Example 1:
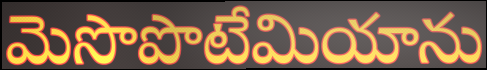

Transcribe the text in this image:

మెసొపొటేమియాను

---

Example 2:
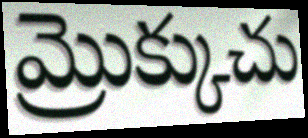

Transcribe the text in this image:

మ్రొక్కుచు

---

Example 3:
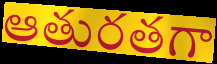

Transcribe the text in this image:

ఆతురతగా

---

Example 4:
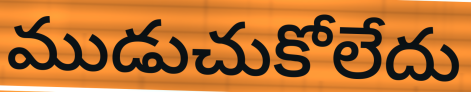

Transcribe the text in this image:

ముడుచుకోలేదు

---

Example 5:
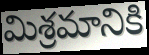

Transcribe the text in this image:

మిశ్రమానికి